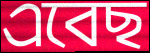
এবেছ